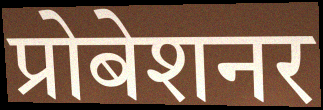
प्रोबेशनर